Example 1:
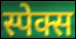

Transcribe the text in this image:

स्पेक्स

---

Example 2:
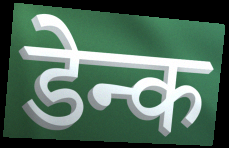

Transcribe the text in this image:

डेन्क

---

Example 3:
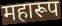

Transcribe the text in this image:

महारूप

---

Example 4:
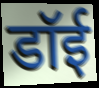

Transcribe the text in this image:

डॉई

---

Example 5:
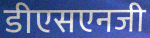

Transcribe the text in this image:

डीएसएनजी